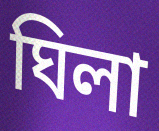
ঘিলা